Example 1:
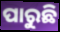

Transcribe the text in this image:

ପାରୁଛି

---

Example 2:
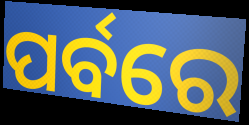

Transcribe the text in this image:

ପର୍ବରେ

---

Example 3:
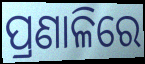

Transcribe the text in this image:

ପ୍ରଣାଳିରେ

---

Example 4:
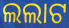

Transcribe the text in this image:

ଲଲାଟ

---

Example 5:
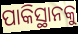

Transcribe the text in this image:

ପାକିସ୍ଥାନକୁ